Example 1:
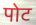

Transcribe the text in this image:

पोट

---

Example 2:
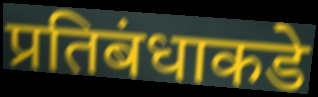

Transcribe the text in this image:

प्रतिबंधाकडे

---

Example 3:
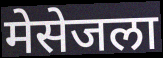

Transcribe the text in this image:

मेसेजला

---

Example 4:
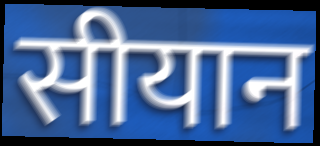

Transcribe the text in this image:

सीयान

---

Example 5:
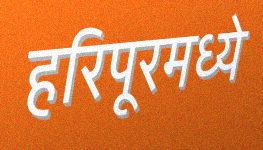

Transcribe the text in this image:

हरिपूरमध्ये